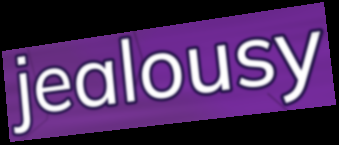
jealousy